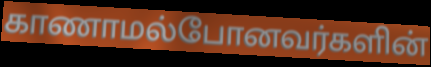
காணாமல்போனவர்களின்